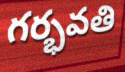
గర్భవతి